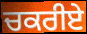
ਚਕਰੀਏ